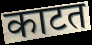
काटत